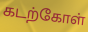
கடற்கோள்